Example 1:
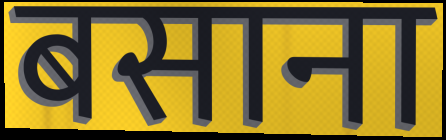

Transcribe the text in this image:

बसाना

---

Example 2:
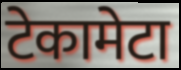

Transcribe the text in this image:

टेकामेटा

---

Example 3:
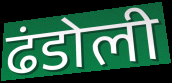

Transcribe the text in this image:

ढंडोली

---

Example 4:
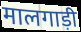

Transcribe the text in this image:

मालगाड़ी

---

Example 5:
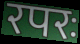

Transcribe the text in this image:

रपरः